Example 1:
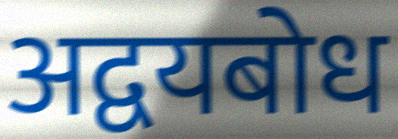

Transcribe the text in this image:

अद्वयबोध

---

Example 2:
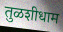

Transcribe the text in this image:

तुळशीधाम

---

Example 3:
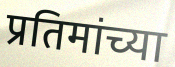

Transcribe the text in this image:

प्रतिमांच्या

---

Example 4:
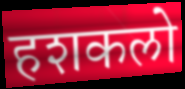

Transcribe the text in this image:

हशकलो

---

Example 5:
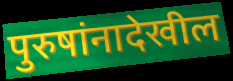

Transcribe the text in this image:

पुरुषांनादेखील